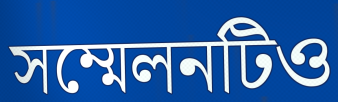
সম্মেলনটিও